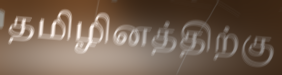
தமிழினத்திற்கு